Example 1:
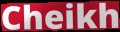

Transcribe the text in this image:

Cheikh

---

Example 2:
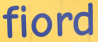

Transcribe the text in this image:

fiord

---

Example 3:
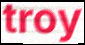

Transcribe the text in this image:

troy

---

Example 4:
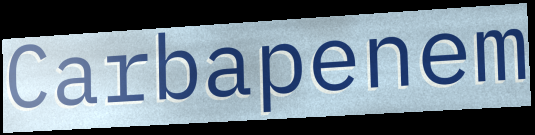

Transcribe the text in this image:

Carbapenem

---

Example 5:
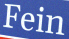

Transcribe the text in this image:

Fein